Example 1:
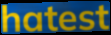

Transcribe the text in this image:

hatest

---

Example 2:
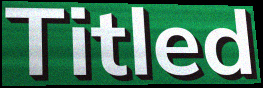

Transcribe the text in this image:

Titled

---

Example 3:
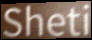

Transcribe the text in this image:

Sheti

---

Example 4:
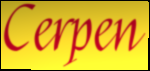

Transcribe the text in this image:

Cerpen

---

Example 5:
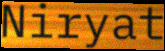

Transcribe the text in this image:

Niryat